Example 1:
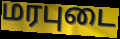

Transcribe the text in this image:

மரபுடை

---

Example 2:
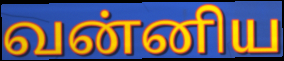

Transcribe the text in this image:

வன்னிய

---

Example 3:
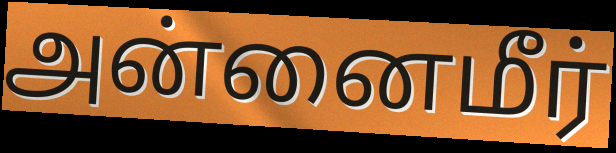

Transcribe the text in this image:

அன்னைமீர்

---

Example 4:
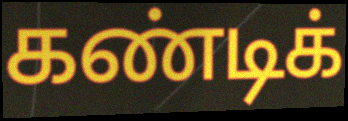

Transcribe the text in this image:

கண்டிக்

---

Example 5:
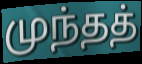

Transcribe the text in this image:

முந்தத்